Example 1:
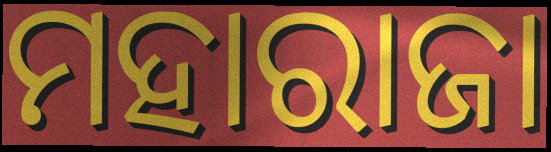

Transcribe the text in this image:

ମହାରାଜା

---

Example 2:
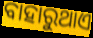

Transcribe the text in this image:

ବାହାରୁଥାଏ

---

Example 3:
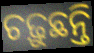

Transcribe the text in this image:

ଚଢ଼ୁଛନ୍ତି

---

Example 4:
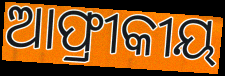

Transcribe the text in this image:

ଆଫ୍ରୀକୀୟ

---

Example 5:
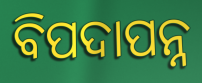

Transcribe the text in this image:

ବିପଦାପନ୍ନ